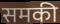
समकी